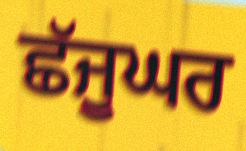
ਛੱਜੂਘਰ